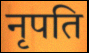
नृपति